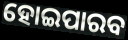
ହୋଇପାରବ